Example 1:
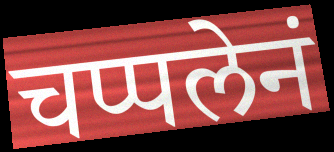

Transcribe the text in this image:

चप्पलेनं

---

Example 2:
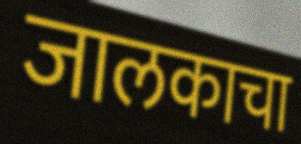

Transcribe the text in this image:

जालकाचा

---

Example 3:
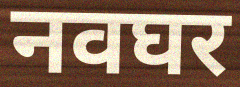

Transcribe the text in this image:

नवघर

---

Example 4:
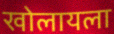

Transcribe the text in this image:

खोलायला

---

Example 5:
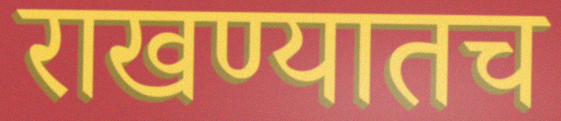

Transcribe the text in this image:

राखण्यातच